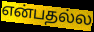
என்பதல்ல